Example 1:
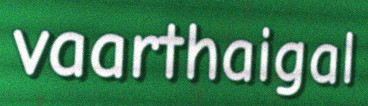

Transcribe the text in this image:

vaarthaigal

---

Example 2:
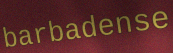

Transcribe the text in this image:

barbadense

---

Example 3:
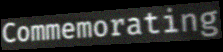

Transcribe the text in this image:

Commemorating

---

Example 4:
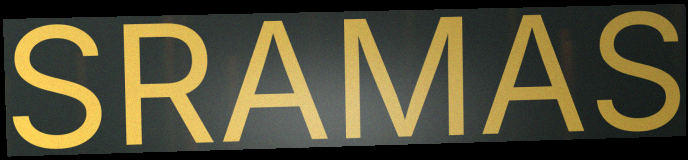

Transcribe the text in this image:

SRAMAS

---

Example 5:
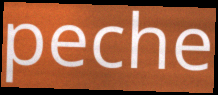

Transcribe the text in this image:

peche